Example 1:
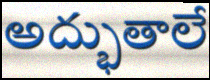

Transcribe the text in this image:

అద్భుతాలే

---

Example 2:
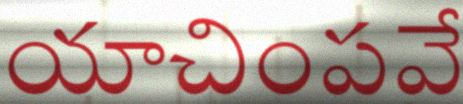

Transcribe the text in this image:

యాచింపవే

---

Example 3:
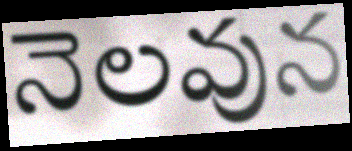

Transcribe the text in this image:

నెలవున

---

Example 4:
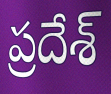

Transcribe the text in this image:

ప్రదేశ్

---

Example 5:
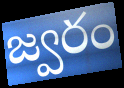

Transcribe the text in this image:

జ్వరం